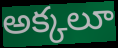
అక్కలూ